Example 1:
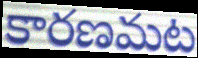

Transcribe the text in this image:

కారణమట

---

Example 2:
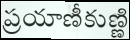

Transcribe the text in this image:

ప్రయాణీకుణ్ణి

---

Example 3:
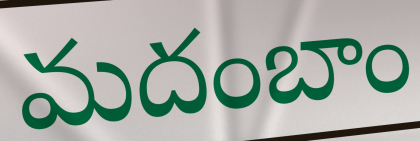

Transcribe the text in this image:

మదంబాం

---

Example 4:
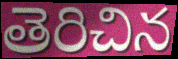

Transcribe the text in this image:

తెరిచిన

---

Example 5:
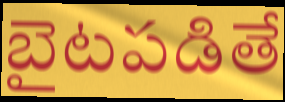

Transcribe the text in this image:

బైటపడితే